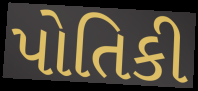
પોતિકી